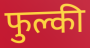
फुल्की